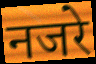
नजरे